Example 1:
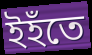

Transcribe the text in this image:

ইহঁতে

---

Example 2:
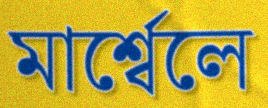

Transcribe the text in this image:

মাৰ্শ্বেলে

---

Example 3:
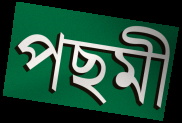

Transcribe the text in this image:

পছমী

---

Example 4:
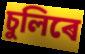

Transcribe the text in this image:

চুলিৰে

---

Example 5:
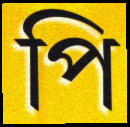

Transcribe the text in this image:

পি